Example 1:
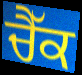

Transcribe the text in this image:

ਚੈੱਕ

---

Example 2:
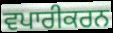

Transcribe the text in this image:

ਵਪਾਰੀਕਰਨ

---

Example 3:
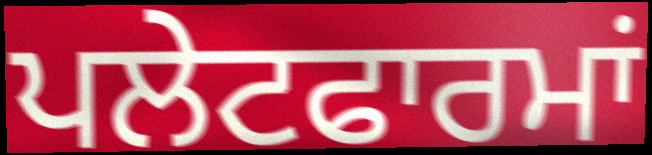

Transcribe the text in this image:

ਪਲੇਟਫਾਰਮਾਂ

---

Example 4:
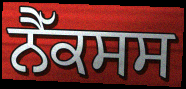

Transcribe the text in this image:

ਨੈੱਕਸਸ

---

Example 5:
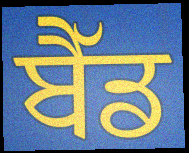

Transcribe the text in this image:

ਬੈੱਡ